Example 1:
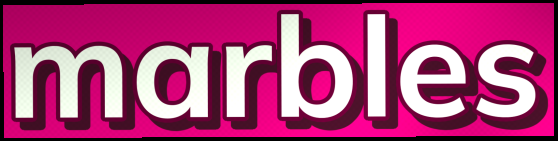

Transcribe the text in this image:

marbles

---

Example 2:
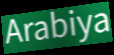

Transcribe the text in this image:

Arabiya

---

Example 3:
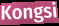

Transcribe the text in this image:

Kongsi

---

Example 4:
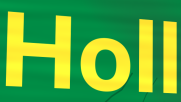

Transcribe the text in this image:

Holl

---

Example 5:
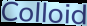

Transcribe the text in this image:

Colloid